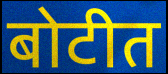
बोटीत